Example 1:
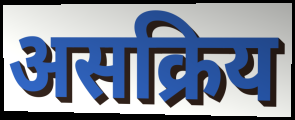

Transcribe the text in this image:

असक्रिय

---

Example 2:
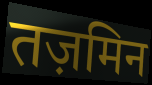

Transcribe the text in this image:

तज़मिन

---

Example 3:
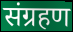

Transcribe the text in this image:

संग्रहण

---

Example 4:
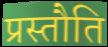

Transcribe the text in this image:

प्रस्तौति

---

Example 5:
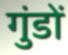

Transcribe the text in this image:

गुंडों